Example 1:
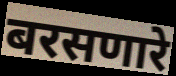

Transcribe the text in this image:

बरसणारे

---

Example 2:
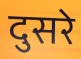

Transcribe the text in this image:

दुसरे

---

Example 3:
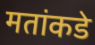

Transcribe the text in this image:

मतांकडे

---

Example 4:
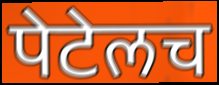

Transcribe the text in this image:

पेटेलच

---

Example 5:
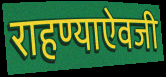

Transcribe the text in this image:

राहण्याऐवजी